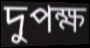
দুপক্ষ